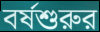
বর্ষশুরুর